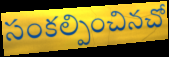
సంకల్పించినచో